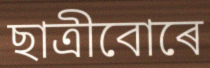
ছাত্ৰীবোৰে